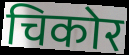
चिकोर